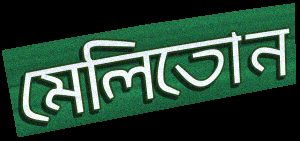
মেলিতোন